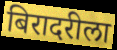
बिरादरीला